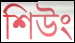
শিউং